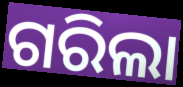
ଗରିଲା